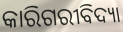
କାରିଗରୀବିଦ୍ୟା